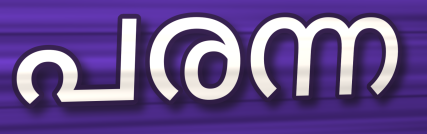
പരന്ന